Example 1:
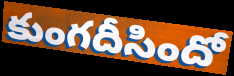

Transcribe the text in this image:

కుంగదీసిందో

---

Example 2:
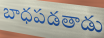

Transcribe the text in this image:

బాధపడతాడు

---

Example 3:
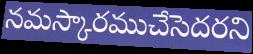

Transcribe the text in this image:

నమస్కారముచేసెదరని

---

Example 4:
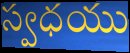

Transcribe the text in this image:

స్వధయు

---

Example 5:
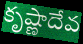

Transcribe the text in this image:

కృష్ణాదేవ